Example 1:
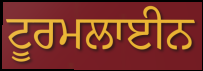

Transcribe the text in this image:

ਟੂਰਮਲਾਈਨ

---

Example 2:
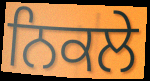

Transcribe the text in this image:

ਨਿਕਲੇ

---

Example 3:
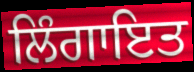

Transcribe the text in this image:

ਲਿੰਗਾਇਤ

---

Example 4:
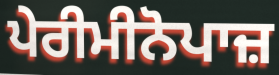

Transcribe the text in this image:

ਪੇਰੀਮੀਨੋਪਾਜ਼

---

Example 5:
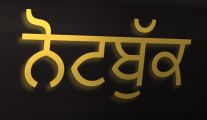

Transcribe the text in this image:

ਨੋਟਬੁੱਕ